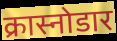
क्रास्नोडार